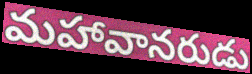
మహావానరుడు